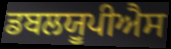
ਡਬਲਯੂਪੀਐਸ